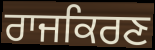
ਰਾਜਕਿਰਣ